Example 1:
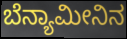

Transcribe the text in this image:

ಬೆನ್ಯಾಮೀನಿನ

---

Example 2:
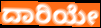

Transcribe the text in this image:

ದಾರಿಯೇ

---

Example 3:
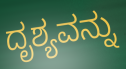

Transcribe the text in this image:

ದೃಶ್ಯವನ್ನು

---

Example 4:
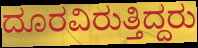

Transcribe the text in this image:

ದೂರವಿರುತ್ತಿದ್ದರು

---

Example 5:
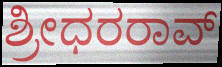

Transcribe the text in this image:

ಶ್ರೀಧರರಾವ್